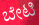
ಬೇಟಿ